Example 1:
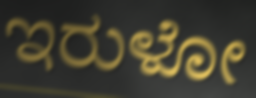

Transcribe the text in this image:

ಇರುಳೋ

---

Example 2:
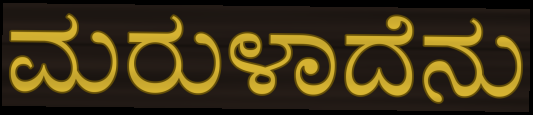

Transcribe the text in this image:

ಮರುಳಾದೆನು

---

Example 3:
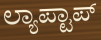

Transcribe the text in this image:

ಲ್ಯಾಪ್ಟಾಪ್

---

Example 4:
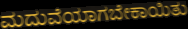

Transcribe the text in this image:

ಮದುವೆಯಾಗಬೇಕಾಯಿತು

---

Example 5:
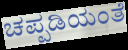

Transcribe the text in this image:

ಚಪ್ಪಡಿಯಂತೆ